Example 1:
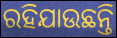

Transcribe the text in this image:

ରହିଯାଉଛନ୍ତି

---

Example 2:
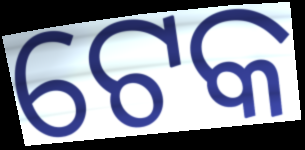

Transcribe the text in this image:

ଟେକ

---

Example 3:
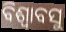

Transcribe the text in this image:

ବିଶ୍ୱାବସୁ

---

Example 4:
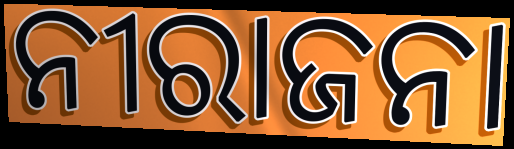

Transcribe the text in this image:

ନୀରାଜନା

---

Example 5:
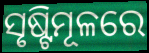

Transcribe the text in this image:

ସୃଷ୍ଟିମୂଳରେ